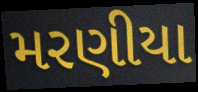
મરણીયા